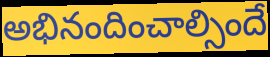
అభినందించాల్సిందే